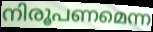
നിരൂപണമെന്ന